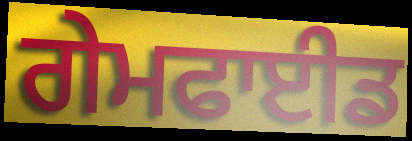
ਗੇਮਫਾਈਡ